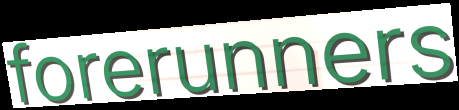
forerunners